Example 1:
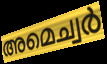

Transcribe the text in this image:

അമെച്വർ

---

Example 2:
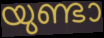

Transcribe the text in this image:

യുണ്ടാ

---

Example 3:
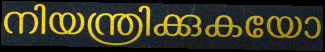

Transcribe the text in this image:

നിയന്ത്രിക്കുകയോ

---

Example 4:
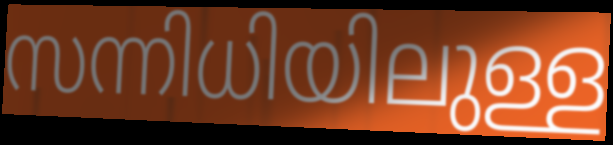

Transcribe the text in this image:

സന്നിധിയിലുള്ള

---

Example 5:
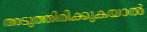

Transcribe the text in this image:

അടുത്തിരിക്കുകയാൽ